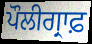
ਪੌਲੀਗ੍ਰਾਫ਼